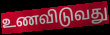
உணவிடுவது